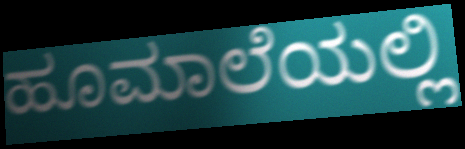
ಹೂಮಾಲೆಯಲ್ಲಿ